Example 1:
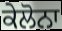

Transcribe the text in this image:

ਕੇਲੋਨਾ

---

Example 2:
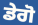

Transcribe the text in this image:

ਡੇਗੋ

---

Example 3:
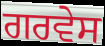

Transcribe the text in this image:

ਗਰਵੇਸ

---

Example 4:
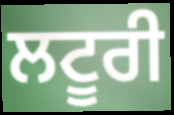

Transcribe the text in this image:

ਲਟੂਰੀ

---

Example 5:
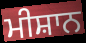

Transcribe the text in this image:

ਮੀਸ਼ਾਨ